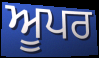
ਅੂਪਰ